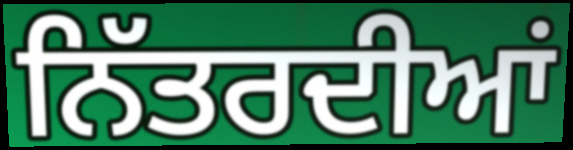
ਨਿੱਤਰਦੀਆਂ